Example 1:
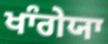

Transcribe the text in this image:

ਖਾੰਗੇਯਾ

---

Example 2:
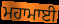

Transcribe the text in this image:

ਮਹਾਮਾਈ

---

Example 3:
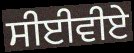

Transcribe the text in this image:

ਸੀਈਵੀਏ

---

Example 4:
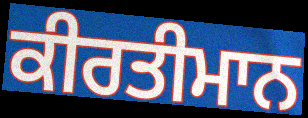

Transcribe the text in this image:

ਕੀਰਤੀਮਾਨ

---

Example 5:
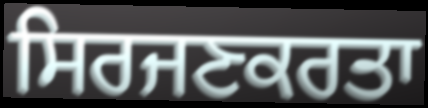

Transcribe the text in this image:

ਸਿਰਜਣਕਰਤਾ